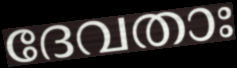
ദേവതാഃ